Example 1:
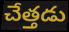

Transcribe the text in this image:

చేత్తడు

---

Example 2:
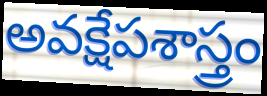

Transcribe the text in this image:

అవక్షేపశాస్త్రం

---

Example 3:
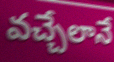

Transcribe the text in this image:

వచ్చేలానే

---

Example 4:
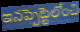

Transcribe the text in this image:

ఇనప్పెట్టెలోంచి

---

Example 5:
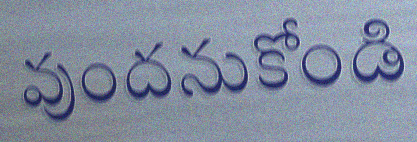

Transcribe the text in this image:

వుందనుకోండి